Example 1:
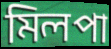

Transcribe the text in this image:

মিলপা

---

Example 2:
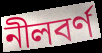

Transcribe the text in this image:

নীলবর্ণ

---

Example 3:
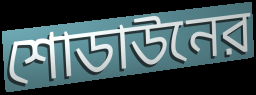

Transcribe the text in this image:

শোডাউনের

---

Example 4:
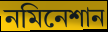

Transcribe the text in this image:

নমিনেশান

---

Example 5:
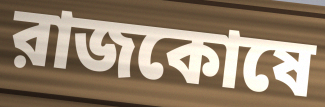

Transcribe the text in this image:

রাজকোষে